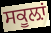
ਸਕੂਲ਼ਾਂ